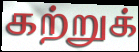
கற்றுக்